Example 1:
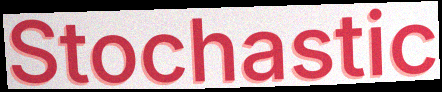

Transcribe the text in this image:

Stochastic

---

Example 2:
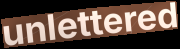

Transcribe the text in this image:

unlettered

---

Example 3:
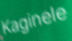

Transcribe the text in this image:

Kaginele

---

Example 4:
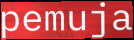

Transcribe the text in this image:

pemuja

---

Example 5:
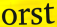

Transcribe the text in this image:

orst